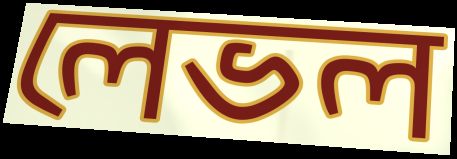
লেভল